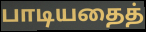
பாடியதைத்